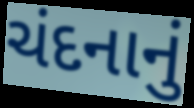
ચંદનાનું